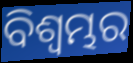
ବିଶ୍ବମ୍ଭର